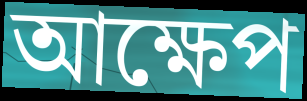
আক্ষেপ